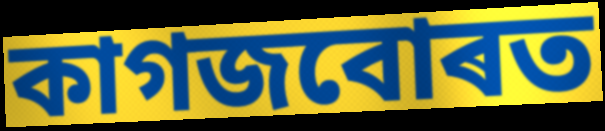
কাগজবোৰত